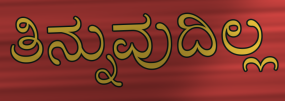
ತಿನ್ನುವುದಿಲ್ಲ